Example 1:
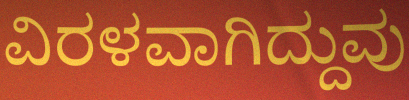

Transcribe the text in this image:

ವಿರಳವಾಗಿದ್ದುವು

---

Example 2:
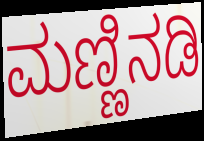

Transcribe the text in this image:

ಮಣ್ಣಿನಡಿ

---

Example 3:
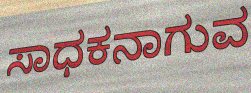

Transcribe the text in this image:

ಸಾಧಕನಾಗುವ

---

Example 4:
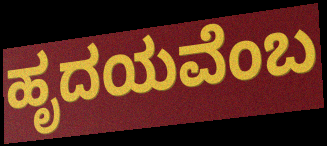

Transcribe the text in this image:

ಹೃದಯವೆಂಬ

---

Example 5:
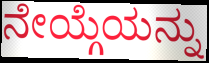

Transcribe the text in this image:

ನೇಯ್ಗೆಯನ್ನು